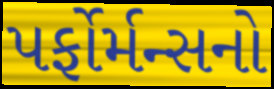
પર્ફોર્મન્સનો